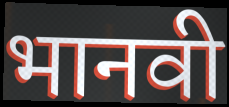
भानवी